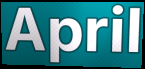
April